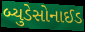
બ્યુડેસોનાઈડ